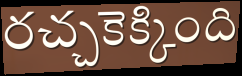
రచ్చకెక్కింది